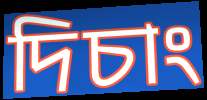
দিচাং